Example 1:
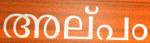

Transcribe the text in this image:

അല്‌പം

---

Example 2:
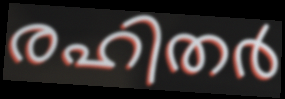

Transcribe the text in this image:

രഹിതർ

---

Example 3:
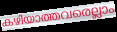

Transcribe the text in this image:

കഴിയാത്തവരെല്ലാം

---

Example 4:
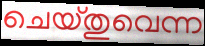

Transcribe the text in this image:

ചെയ്തുവെന്ന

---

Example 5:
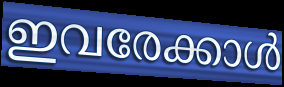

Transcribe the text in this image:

ഇവരേക്കാൾ